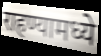
राहण्यामध्ये